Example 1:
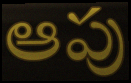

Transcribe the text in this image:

ఆపు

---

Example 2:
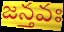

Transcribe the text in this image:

జన్తవః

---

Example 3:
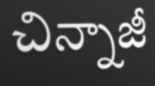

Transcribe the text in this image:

చిన్నాజీ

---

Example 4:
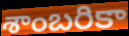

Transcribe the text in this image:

శాంబరికా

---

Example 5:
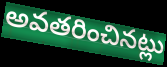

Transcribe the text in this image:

అవతరించినట్లు